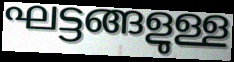
ഘട്ടങ്ങളുള്ള